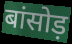
बांसोड़